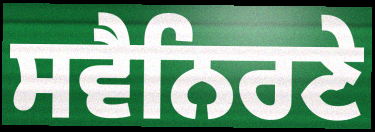
ਸਵੈਨਿਰਣੇ